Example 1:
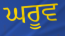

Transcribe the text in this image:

ਘਰੂਵ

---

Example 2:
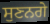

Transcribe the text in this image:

ਸੁਣਨਗੇ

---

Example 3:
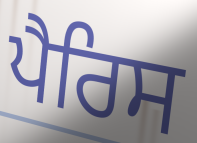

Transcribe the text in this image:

ਪੈਰਿਸ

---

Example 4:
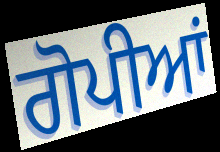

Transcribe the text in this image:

ਗੋਪੀਆਂ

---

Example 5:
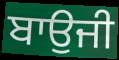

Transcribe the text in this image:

ਬਾਉਜੀ